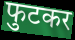
फुटकर